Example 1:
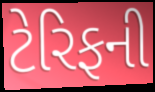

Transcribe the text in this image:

ટેરિફની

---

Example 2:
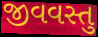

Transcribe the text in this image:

જીવવસ્તુ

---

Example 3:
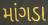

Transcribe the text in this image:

માંગડા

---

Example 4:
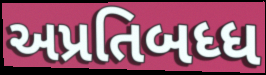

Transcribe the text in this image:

અપ્રતિબધ્ધ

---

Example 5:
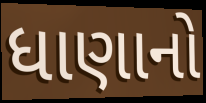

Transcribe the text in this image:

ધાણાનો